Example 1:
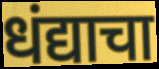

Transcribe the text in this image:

धंद्याचा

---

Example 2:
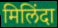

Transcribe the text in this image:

मिलिंदा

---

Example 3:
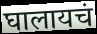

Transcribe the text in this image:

घालायचं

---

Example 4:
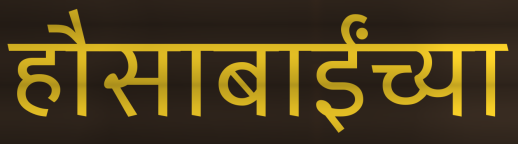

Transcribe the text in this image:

हौसाबाईंच्या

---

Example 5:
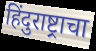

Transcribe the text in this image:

हिंदुराष्ट्राचा